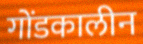
गोंडकालीन